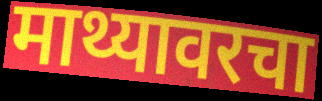
माथ्यावरचा